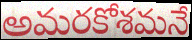
అమరకోశమనే